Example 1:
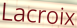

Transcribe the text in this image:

Lacroix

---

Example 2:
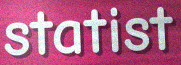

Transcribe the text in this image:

statist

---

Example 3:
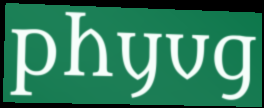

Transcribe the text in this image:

phyug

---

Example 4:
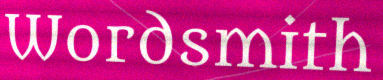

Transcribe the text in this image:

Wordsmith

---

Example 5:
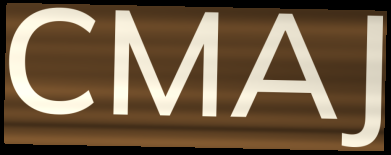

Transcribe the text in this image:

CMAJ